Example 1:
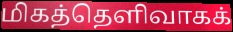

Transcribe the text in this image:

மிகத்தெளிவாகக்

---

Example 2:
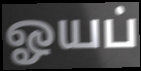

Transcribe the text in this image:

ஓயப்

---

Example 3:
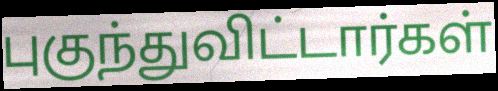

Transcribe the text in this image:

புகுந்துவிட்டார்கள்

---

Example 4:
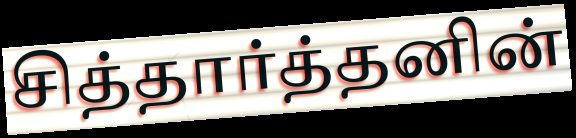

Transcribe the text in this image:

சித்தார்த்தனின்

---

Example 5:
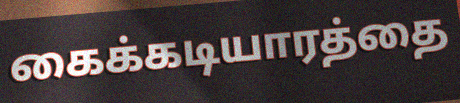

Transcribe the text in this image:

கைக்கடியாரத்தை